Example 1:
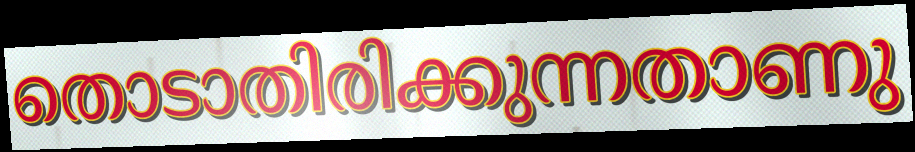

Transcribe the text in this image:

തൊടാതിരിക്കുന്നതാണു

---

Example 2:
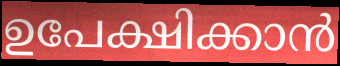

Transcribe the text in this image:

ഉപേക്ഷിക്കാൻ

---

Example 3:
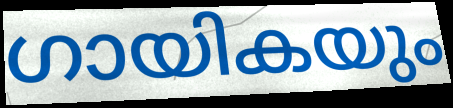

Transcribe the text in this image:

ഗായികയും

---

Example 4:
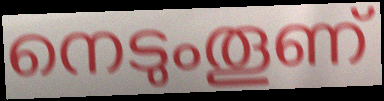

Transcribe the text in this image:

നെടുംതൂണ്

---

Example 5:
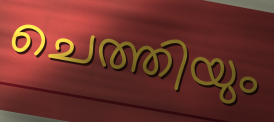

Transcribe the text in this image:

ചെത്തിയും